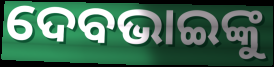
ଦେବଭାଇଙ୍କୁ